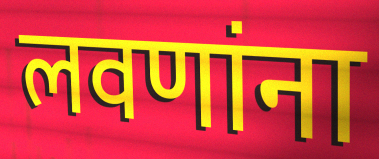
लवणांना